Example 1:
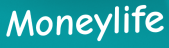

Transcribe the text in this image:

Moneylife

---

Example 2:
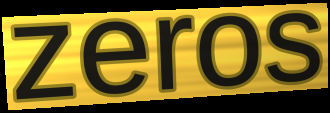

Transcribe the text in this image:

zeros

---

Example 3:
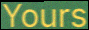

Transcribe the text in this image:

Yours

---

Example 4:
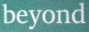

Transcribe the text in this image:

beyond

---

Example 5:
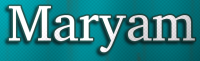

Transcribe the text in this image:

Maryam